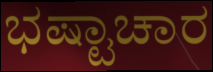
ಭಷ್ಟಾಚಾರ